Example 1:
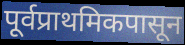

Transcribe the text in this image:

पूर्वप्राथमिकपासून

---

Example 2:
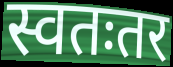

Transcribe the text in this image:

स्वतःतर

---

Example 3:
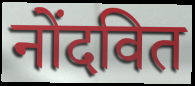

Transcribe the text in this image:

नोंदवित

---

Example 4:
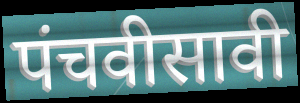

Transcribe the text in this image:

पंचवीसावी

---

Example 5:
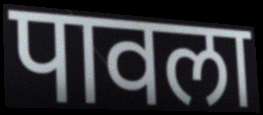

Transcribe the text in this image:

पावला